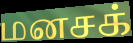
மனசக்